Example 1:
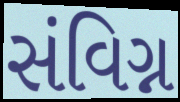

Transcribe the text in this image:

સંવિગ્ન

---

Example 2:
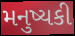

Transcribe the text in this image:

મનુષ્યકી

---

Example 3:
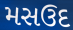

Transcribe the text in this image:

મસઉદ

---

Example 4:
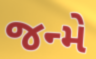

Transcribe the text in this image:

જન્મે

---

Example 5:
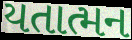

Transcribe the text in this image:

યતાત્મન